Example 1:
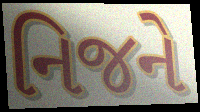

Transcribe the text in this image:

નિજને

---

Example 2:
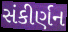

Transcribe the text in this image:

સંકીર્ણન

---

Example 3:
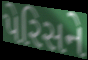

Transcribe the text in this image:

પેરિસને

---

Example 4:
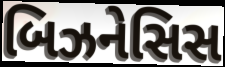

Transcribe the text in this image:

બિઝનેસિસ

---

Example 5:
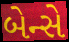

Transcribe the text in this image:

બેન્સે